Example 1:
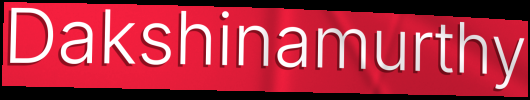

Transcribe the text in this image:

Dakshinamurthy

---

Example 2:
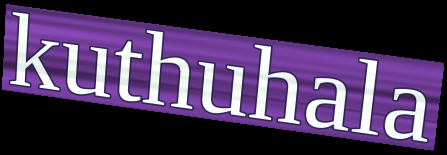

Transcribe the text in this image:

kuthuhala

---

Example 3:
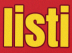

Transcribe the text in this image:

listi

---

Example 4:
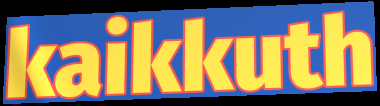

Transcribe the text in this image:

kaikkuth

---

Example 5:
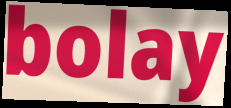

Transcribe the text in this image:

bolay